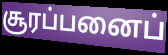
சூரப்பனைப்